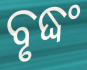
ବୃଦ୍ଧଂ